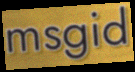
msgid